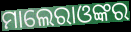
ମାଲେରାଓଙ୍କର